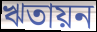
ঋতায়ন